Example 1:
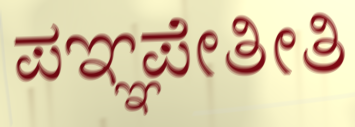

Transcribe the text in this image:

ಪಞ್ಞಪೇತೀತಿ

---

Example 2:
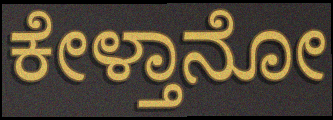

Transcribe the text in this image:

ಕೇಳ್ತಾನೋ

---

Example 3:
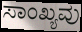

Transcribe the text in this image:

ಸಾಂಖ್ಯವು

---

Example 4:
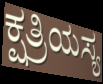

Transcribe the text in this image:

ಕ್ಷತ್ರಿಯಸ್ಯ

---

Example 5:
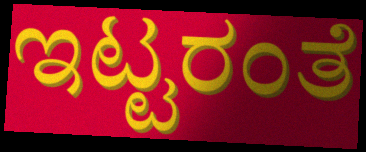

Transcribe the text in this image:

ಇಟ್ಟರಂತೆ